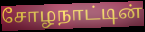
சோழநாட்டின்